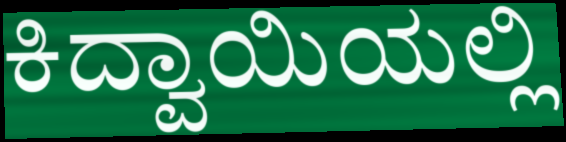
ಕಿದ್ವಾಯಿಯಲ್ಲಿ